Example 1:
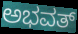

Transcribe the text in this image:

ಅಭವತ್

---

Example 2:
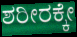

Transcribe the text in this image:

ಶರೀರಕ್ಕೇ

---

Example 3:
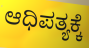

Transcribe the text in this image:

ಆಧಿಪತ್ಯಕ್ಕೆ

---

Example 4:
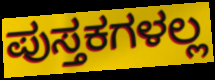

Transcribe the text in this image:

ಪುಸ್ತಕಗಳಲ್ಲ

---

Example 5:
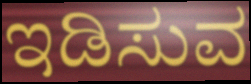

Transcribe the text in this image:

ಇಡಿಸುವ